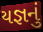
યજ્ઞનું